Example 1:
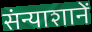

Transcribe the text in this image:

संन्याशानें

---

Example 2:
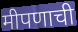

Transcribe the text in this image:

मीपणाची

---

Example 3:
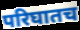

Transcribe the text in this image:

परिघातच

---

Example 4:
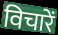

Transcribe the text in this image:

विचारें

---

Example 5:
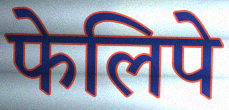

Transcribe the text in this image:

फेलिपे